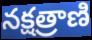
నక్షత్రాణి